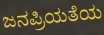
ಜನಪ್ರಿಯತೆಯ